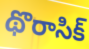
థొరాసిక్